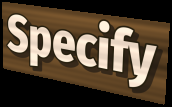
Specify